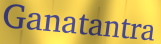
Ganatantra